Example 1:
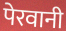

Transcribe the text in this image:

पेरवानी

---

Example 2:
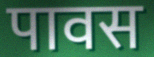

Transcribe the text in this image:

पावस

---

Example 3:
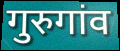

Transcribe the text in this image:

गुरुगांव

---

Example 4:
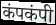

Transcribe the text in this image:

कंपकंपी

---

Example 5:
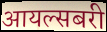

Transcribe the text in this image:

आयल्सबरी